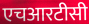
एचआरटीसी